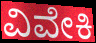
ವಿವೇಕಿ